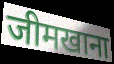
जीमखाना